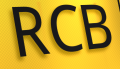
RCB